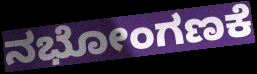
ನಭೋಂಗಣಕೆ